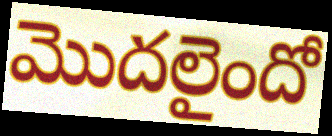
మొదలైందో